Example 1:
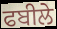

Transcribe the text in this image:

ਫਬੀਲੇ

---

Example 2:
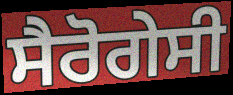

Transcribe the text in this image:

ਸੈਰੋਗੇਸੀ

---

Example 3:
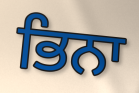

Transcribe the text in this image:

ਭਿਨਾ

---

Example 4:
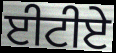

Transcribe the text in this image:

ਈਟੀਏ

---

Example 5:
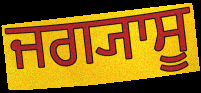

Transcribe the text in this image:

ਜਗ੍ਯਾਸੂ